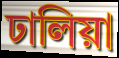
ঢালিয়া